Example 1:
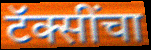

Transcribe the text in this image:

टॅक्सींचा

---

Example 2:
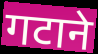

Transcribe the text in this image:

गटाने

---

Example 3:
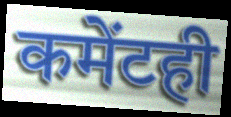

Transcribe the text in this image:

कमेंटही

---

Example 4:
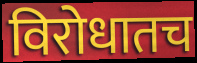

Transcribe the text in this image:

विरोधातच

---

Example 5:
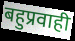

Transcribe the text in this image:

बहुप्रवाही